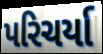
પરિચર્યા